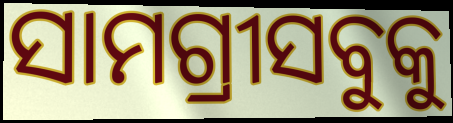
ସାମଗ୍ରୀସବୁକୁ